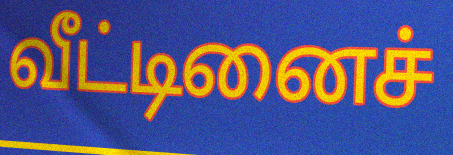
வீட்டினைச்